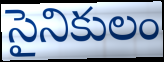
సైనికులం